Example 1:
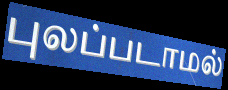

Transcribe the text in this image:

புலப்படாமல்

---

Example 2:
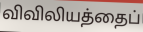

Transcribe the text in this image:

விவிலியத்தைப்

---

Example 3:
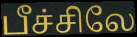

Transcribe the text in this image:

பீச்சிலே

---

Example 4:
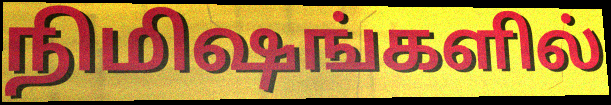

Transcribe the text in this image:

நிமிஷங்களில்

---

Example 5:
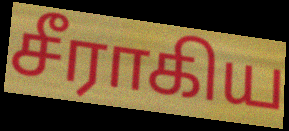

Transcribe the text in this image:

சீராகிய